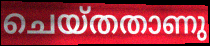
ചെയ്തതാണു